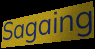
Sagaing